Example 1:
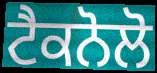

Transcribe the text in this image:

ਟੈਕਨੋਲੋ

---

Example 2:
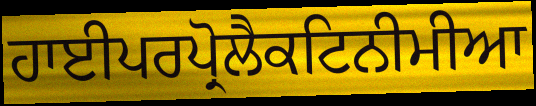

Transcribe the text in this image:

ਹਾਈਪਰਪ੍ਰੋਲੈਕਟਿਨੀਮੀਆ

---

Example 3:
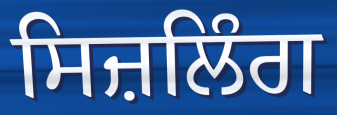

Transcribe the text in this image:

ਸਿਜ਼ਲਿੰਗ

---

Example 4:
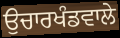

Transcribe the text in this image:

ਉਚਾਰਖੰਡਵਾਲੇ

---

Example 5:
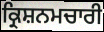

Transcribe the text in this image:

ਕ੍ਰਿਸ਼ਨਮਚਾਰੀ